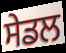
ਸੇਡਲ